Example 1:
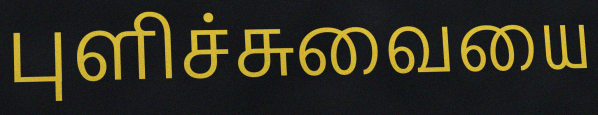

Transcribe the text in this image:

புளிச்சுவையை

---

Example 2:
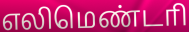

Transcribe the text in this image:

எலிமெண்டரி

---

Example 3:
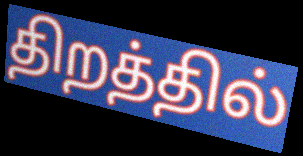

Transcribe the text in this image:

திறத்தில்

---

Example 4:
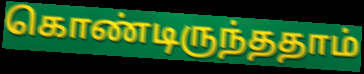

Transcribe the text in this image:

கொண்டிருந்ததாம்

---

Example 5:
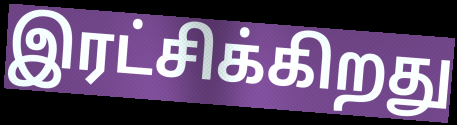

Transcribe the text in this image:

இரட்சிக்கிறது